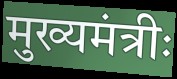
मुख्यमंत्रीः